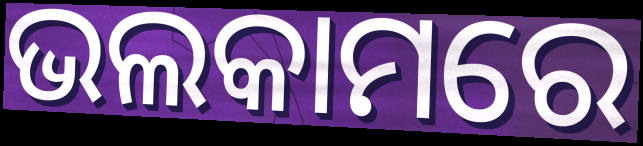
ଭଲକାମରେ